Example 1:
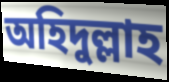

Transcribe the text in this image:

অহিদুল্লাহ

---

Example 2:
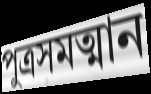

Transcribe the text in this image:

পুত্রসমত্মান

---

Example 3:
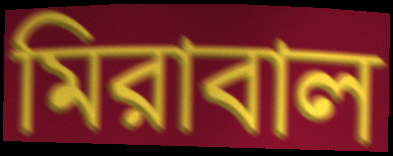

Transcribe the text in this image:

মিরাবাল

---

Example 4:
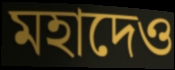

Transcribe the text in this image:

মহাদেও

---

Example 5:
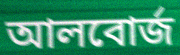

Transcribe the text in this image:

আলবোর্জ